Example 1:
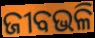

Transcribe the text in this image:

ଜୀବଭଳି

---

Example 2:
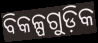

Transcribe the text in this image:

ବିକଳ୍ପଗୁଡ଼ିକ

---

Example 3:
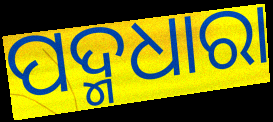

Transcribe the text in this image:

ପଦ୍ମଧାରା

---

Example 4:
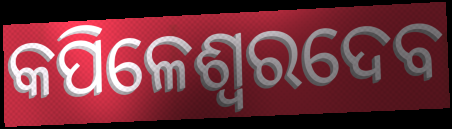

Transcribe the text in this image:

କପିଳେଶ୍ୱରଦେବ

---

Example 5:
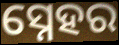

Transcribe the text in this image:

ସ୍ନେହର